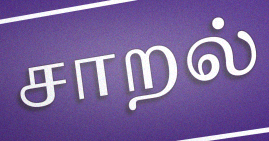
சாறல்